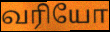
வரியோ